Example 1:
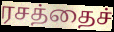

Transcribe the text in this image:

ரசத்தைச்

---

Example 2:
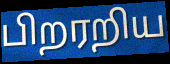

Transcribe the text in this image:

பிறரறிய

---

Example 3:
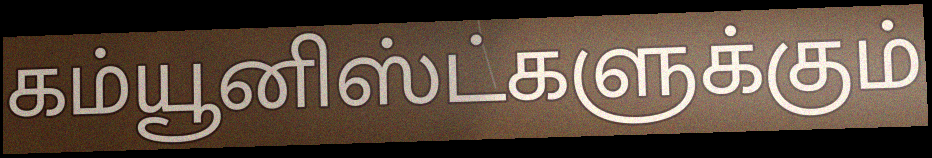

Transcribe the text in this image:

கம்யூனிஸ்ட்களுக்கும்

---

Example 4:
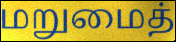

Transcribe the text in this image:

மறுமைத்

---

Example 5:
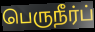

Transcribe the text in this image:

பெருநீர்ப்